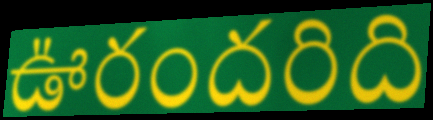
ఊరందరిది